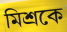
মিশ্রকে